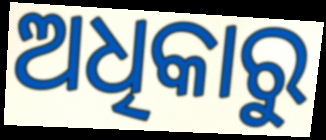
ଅଧିକାରୁ